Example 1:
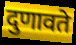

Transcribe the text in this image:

दुणावते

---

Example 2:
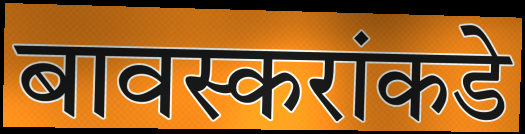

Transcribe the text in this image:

बावस्करांकडे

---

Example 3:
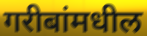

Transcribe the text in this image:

गरीबांमधील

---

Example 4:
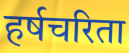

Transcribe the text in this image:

हर्षचरिता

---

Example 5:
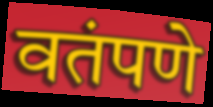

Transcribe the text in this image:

वतंपणे